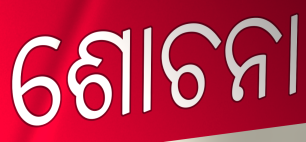
ଶୋଚନା